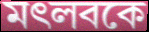
মৎলবকে